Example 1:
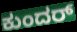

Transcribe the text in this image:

ಕುಂದರ್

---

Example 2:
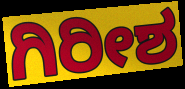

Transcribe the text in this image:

ಗಿರೀಶ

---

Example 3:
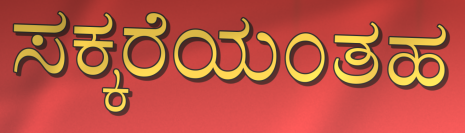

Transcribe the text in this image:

ಸಕ್ಕರೆಯಂತಹ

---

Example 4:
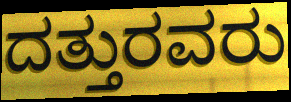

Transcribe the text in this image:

ದತ್ತುರವರು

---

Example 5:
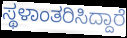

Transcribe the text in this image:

ಸ್ಥಳಾಂತರಿಸಿದ್ದಾರೆ